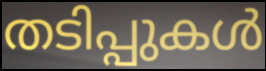
തടിപ്പുകൾ